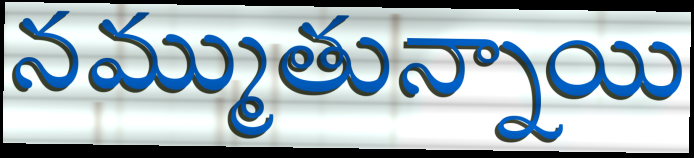
నమ్ముతున్నాయి